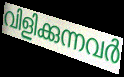
വിളിക്കുന്നവർ